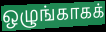
ஒழுங்காகக்